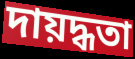
দায়দ্ধতা